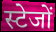
स्टेजों